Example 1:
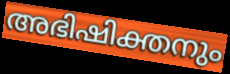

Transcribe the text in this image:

അഭിഷിക്തനും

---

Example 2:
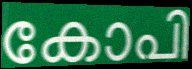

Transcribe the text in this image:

കോപി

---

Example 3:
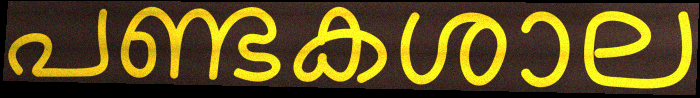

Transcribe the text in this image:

പണ്ടകശാല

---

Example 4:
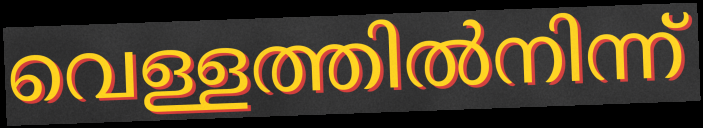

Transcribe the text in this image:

വെള്ളത്തിൽനിന്ന്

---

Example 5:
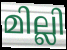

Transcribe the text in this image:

മില്ലി